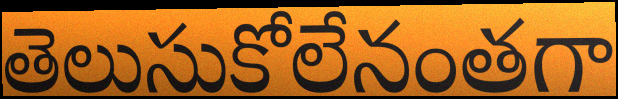
తెలుసుకోలేనంతగా